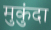
मुकुंदा